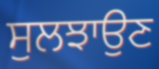
ਸੁਲਝਾਉਣ